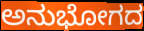
ಅನುಭೋಗದ